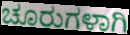
ಚೂರುಗಳಾಗಿ